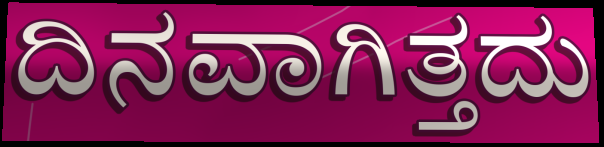
ದಿನವಾಗಿತ್ತದು